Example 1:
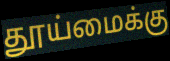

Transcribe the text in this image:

தூய்மைக்கு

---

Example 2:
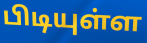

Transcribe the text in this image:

பிடியுள்ள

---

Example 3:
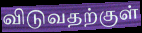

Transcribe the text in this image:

விடுவதற்குள்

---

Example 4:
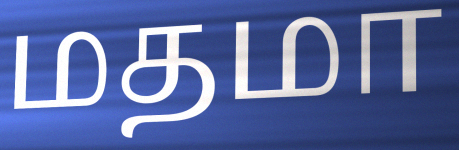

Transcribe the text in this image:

மதமா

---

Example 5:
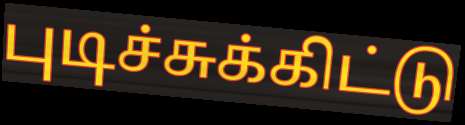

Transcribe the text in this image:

புடிச்சுக்கிட்டு